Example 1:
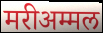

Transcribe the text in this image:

मरीअम्मल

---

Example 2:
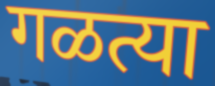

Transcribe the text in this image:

गळत्या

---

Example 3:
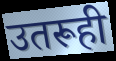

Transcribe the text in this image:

उतरूही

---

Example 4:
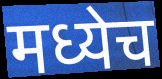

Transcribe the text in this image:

मध्येच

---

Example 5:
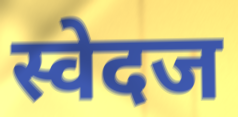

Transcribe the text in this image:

स्वेदज